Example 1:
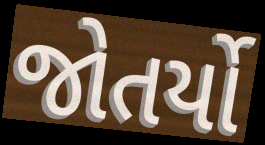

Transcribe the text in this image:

જોતર્યો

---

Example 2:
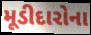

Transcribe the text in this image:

મૂડીદારોના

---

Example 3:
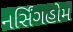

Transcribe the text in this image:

નર્સિંગહોમ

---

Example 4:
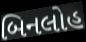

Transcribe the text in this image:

બિનલોહ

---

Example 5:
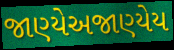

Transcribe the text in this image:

જાણ્યેઅજાણ્યેય